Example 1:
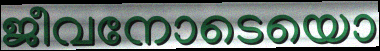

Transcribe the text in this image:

ജീവനോടെയൊ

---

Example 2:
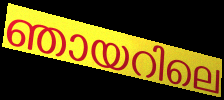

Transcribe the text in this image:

ഞായറിലെ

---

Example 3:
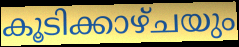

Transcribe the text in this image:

കൂടിക്കാഴ്ചയും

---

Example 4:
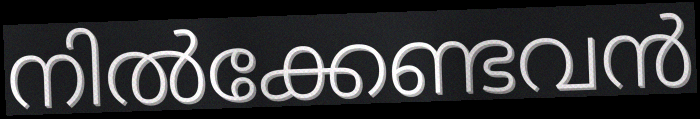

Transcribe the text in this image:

നിൽക്കേണ്ടവൻ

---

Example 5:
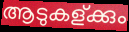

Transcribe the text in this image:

ആടുകള്ക്കും